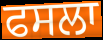
ਫਸਲਾ